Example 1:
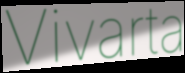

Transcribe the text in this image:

Vivarta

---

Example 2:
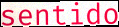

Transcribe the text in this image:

sentido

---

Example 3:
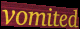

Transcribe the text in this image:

vomited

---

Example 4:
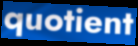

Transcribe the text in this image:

quotient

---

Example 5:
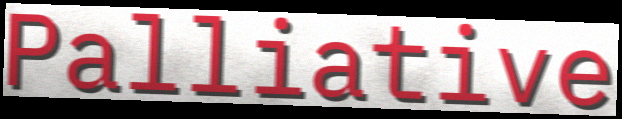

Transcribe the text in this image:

Palliative